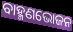
ବାହ୍ମଣଭୋଜନ